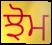
ਝੋਮ